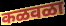
कळवळा